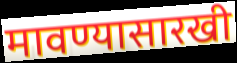
मावण्यासारखी